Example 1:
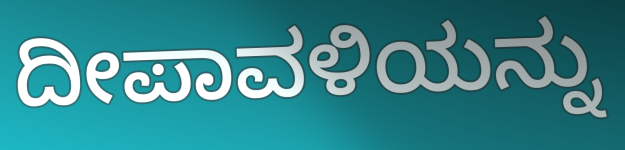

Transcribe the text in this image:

ದೀಪಾವಳಿಯನ್ನು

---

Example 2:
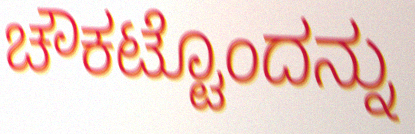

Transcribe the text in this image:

ಚೌಕಟ್ಟೊಂದನ್ನು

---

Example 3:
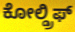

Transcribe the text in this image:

ಕೋಲ್ಡ್ರಿಫ್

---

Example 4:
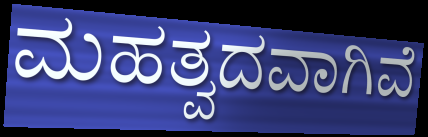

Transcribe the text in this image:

ಮಹತ್ವದವಾಗಿವೆ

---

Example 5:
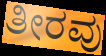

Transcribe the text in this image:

ತೀರವು